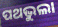
ପଥଭୁଲା